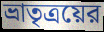
ভ্রাতৃত্রয়ের